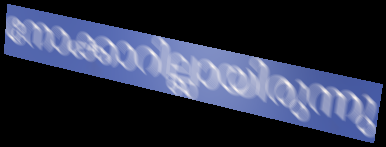
നോക്കാറില്ലായിരുന്നു